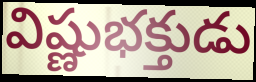
విష్ణుభక్తుడు